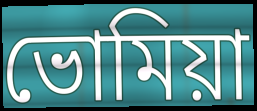
ভোমিয়া